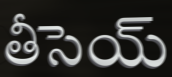
తీసెయ్